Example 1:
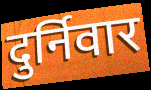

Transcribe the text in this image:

दुर्निवार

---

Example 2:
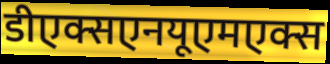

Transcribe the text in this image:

डीएक्सएनयूएमएक्स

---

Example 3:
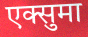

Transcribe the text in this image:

एक्सुमा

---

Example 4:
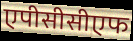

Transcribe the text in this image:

एपीसीसीएफ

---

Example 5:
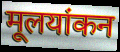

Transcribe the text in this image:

मूलयांकन